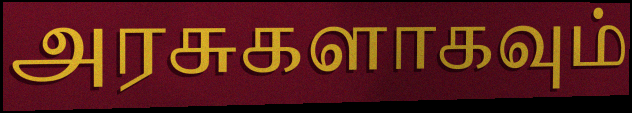
அரசுகளாகவும்